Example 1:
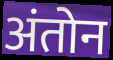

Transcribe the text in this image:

अंतोन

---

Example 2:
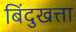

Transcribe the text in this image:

बिंदुखत्ता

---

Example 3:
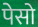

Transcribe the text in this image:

पेसो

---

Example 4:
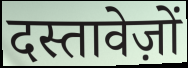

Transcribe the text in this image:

दस्तावेज़ों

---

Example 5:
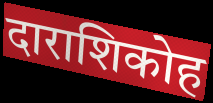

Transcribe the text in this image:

दाराशिकोह